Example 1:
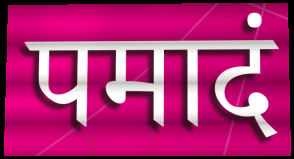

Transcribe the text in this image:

पमादं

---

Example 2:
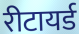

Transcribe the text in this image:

रीटायर्ड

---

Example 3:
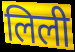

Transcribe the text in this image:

लिली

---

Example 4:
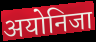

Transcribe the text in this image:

अयोनिजा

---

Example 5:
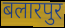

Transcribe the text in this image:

बलारपुर